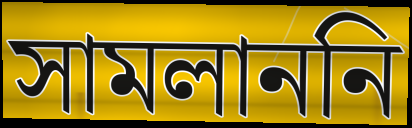
সামলাননি